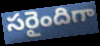
సరైందిగా